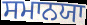
ਸਮਾਨਯਾ